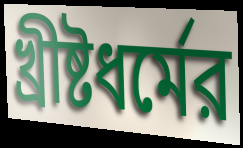
খ্রীষ্টধর্মের